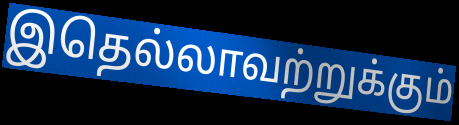
இதெல்லாவற்றுக்கும்